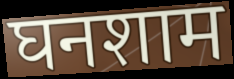
घनशाम